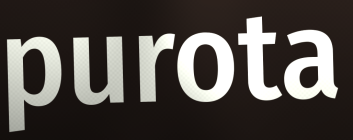
purota